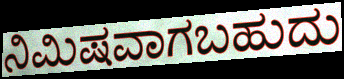
ನಿಮಿಷವಾಗಬಹುದು